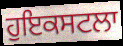
ਹੁਇਕਸਟਲਾ